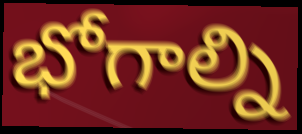
భోగాల్ని